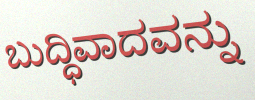
ಬುದ್ಧಿವಾದವನ್ನು